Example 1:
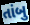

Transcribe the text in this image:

તાંબુ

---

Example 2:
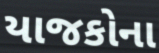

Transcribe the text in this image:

યાજકોના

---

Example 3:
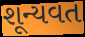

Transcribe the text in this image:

શૂન્યવત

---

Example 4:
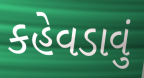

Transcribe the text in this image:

કહેવડાવું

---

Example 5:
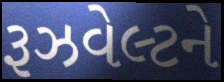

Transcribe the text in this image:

રૂઝવેલ્ટને